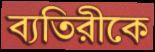
ব্যতিরীকে